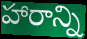
హారాన్ని